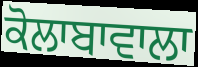
ਕੋਲਾਬਾਵਾਲਾ